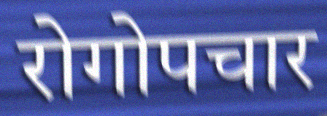
रोगोपचार